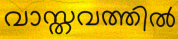
വാസ്തവത്തിൽ